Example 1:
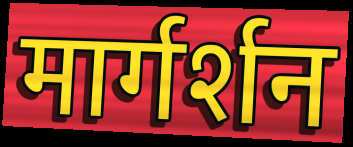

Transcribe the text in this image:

मार्गर्शन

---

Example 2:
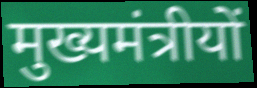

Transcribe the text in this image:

मुख्यमंत्रीयों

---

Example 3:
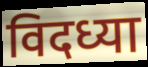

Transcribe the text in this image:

विदध्या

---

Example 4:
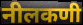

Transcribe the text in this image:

नीलकणी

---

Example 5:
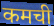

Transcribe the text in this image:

कमची